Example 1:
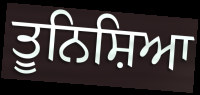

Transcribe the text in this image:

ਤੂਨਿਸ਼ਿਆ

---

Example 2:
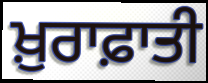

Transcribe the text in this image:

ਖ਼ੁਰਾਫ਼ਾਤੀ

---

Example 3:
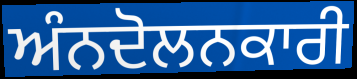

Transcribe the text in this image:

ਅੰਨਦੋਲਨਕਾਰੀ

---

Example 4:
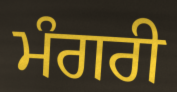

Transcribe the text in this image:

ਮੰਗਰੀ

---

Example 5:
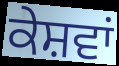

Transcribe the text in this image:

ਕੇਸ਼ਵਾਂ